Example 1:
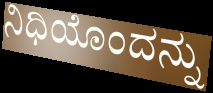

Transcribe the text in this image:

ನಿಧಿಯೊಂದನ್ನು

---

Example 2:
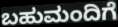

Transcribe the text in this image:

ಬಹುಮಂದಿಗೆ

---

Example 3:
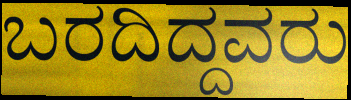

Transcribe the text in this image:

ಬರದಿದ್ದವರು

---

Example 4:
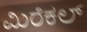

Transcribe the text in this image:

ಮಿರೆಕಲ್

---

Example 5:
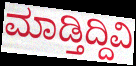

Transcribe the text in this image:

ಮಾಡ್ತಿದ್ದಿವಿ